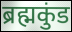
ब्रह्मकुंड